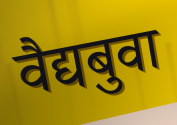
वैद्यबुवा